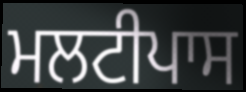
ਮਲਟੀਪਾਸ